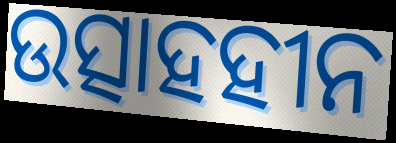
ଉତ୍ସାହହୀନ